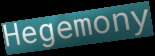
Hegemony